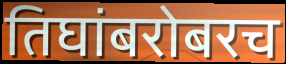
तिघांबरोबरच